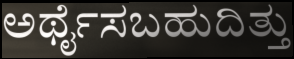
ಅರ್ಥೈಸಬಹುದಿತ್ತು